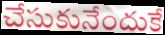
చేసుకునేందుకే